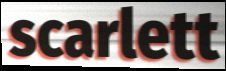
scarlett